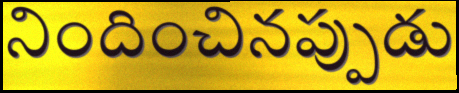
నిందించినప్పుడు